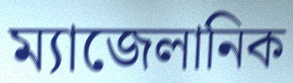
ম্যাজেলানিক